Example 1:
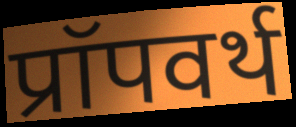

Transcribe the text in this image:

प्रॉपवर्थ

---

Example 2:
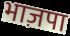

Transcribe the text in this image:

भाज़पा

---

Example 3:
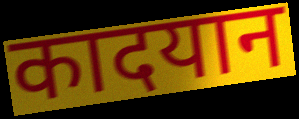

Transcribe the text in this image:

कादयान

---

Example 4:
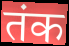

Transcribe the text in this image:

तंक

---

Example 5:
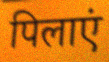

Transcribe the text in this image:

पिलाएं